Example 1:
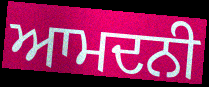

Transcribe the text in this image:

ਆਮਦਨੀ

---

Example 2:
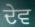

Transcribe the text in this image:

ਦੇਵ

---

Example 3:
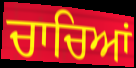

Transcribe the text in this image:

ਚਾਚਿਆਂ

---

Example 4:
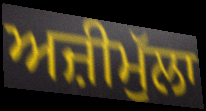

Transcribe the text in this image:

ਅਜ਼ੀਮੁੱਲਾ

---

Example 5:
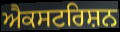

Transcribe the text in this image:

ਐਕਸਟਰਿਸ਼ਨ